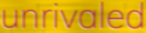
unrivaled